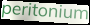
peritonium